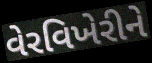
વેરવિખેરીને